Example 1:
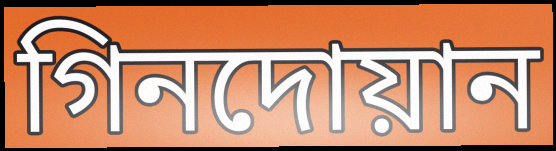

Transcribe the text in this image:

গিনদোয়ান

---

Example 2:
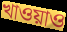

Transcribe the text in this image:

খাওয়াও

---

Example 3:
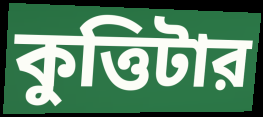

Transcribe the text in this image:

কুত্তিটার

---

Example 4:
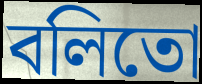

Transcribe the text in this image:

বলিতো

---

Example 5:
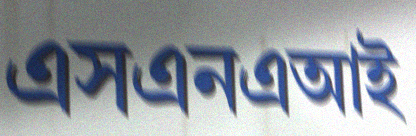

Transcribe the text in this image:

এসএনএআই